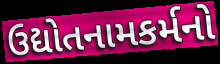
ઉદ્યોતનામકર્મનો